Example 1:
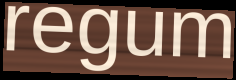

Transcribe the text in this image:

regum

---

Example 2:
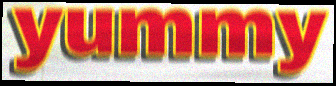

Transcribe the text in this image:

yummy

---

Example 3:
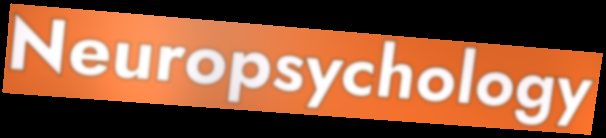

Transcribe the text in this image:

Neuropsychology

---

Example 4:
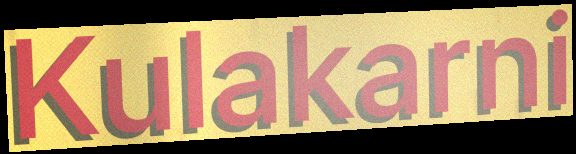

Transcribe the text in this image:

Kulakarni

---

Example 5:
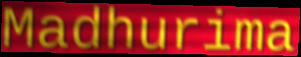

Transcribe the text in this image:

Madhurima